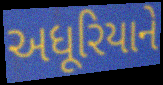
અધૂરિયાને